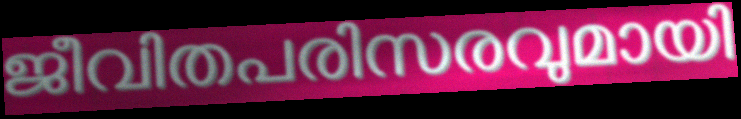
ജീവിതപരിസരവുമായി